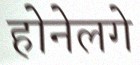
होनेलगे